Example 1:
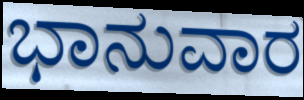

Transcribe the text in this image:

ಭಾನುವಾರ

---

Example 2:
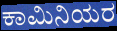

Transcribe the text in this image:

ಕಾಮಿನಿಯರ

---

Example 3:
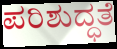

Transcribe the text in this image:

ಪರಿಶುದ್ಧತೆ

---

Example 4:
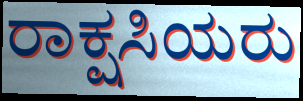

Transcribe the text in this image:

ರಾಕ್ಷಸಿಯರು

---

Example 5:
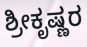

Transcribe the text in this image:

ಶ್ರೀಕೃಷ್ಣರ